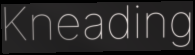
Kneading